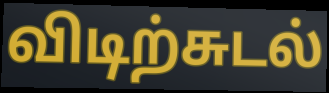
விடிற்சுடல்